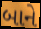
બાને